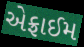
એફ્રાઈમ